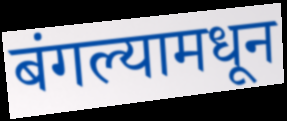
बंगल्यामधून